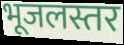
भूजलस्तर